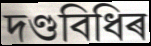
দণ্ডবিধিৰ